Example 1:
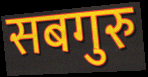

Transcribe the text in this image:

सबगुरु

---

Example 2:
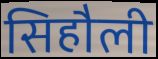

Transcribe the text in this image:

सिहौली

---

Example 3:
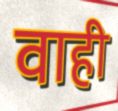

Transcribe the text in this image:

वाही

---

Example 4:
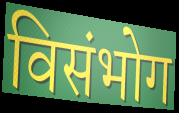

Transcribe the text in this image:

विसंभोग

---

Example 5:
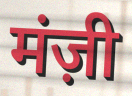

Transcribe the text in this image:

मंज़ी